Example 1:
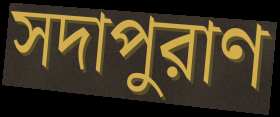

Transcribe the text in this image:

সদাপুরাণ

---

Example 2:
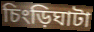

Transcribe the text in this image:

চিংড়িঘাটা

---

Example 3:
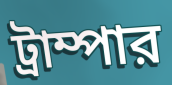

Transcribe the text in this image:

ট্রাম্পার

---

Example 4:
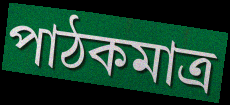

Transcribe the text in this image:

পাঠকমাত্র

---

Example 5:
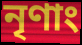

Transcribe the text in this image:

নৃণাং